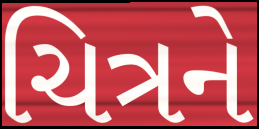
ચિત્રને